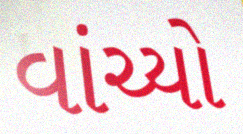
વાંચ્યો